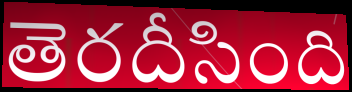
తెరదీసింది